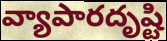
వ్యాపారదృష్టి